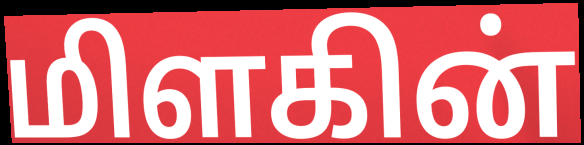
மிளகின்